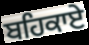
ਬਹਿਕਾਏ